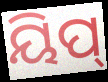
ୟିପ୍